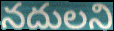
నదులని